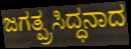
ಜಗತ್ಪ್ರಸಿದ್ಧನಾದ